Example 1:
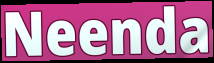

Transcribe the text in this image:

Neenda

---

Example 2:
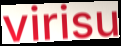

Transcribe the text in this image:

virisu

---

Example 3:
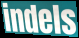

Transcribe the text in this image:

indels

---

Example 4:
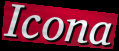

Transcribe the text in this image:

Icona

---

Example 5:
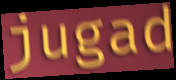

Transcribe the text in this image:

jugad